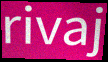
rivaj